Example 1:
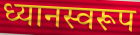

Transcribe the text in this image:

ध्यानस्वरूप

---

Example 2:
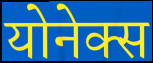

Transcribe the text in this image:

योनेक्स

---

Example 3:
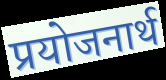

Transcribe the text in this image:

प्रयोजनार्थ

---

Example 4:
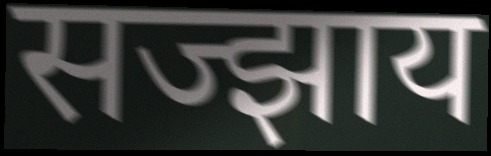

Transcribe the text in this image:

सज्झाय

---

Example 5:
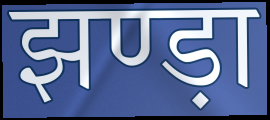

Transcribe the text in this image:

झण्ड़ा